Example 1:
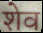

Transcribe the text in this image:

शेव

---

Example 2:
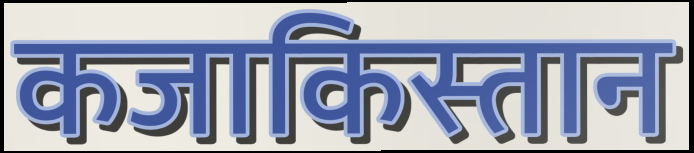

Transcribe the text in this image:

कजाकिस्तान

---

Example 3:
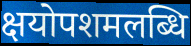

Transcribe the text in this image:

क्षयोपशमलब्धि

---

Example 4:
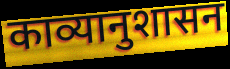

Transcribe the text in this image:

काव्यानुशासन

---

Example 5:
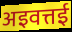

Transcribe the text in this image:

अइवत्तई